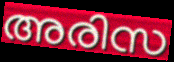
അരിസ